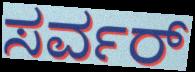
ಸರ್ವರ್